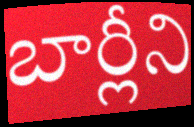
బార్లీని